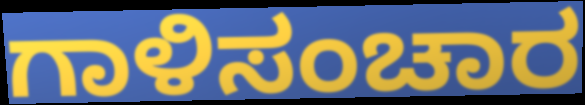
ಗಾಳಿಸಂಚಾರ